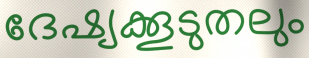
ദേഷ്യക്കൂടുതലും